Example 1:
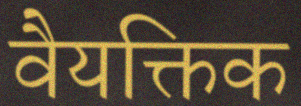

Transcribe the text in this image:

वैयक्तिक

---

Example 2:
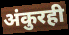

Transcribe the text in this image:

अंकुरही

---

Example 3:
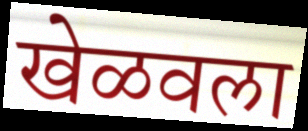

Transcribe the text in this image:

खेळवला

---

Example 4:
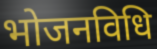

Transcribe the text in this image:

भोजनविधि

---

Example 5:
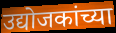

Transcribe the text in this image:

उद्योजकांच्या